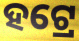
ହଟ୍ରେ